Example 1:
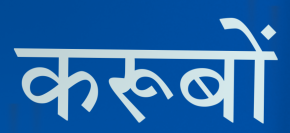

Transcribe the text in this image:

करूबों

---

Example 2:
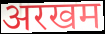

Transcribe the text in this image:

अरखम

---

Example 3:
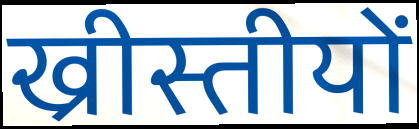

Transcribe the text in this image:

ख्रीस्तीयों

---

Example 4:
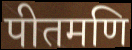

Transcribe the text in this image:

पीतमणि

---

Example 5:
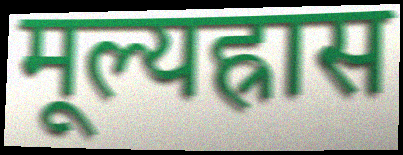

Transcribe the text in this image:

मूल्यह्रास